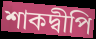
শাকদ্বীপি